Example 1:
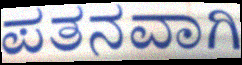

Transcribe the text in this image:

ಪತನವಾಗಿ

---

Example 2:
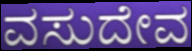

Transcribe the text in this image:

ವಸುದೇವ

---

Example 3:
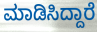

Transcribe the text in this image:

ಮಾಡಿಸಿದ್ದಾರೆ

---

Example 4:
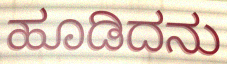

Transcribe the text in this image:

ಹೂಡಿದನು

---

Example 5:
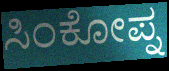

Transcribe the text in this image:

ಸಿಂಕೋಪ್ನ